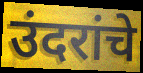
उंदरांचे